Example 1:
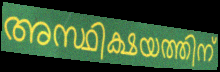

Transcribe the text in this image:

അസ്ഥിക്ഷയത്തിന്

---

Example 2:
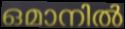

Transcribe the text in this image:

ഒമാനിൽ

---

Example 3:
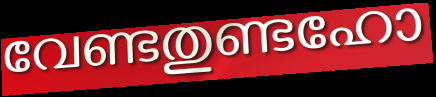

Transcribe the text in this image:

വേണ്ടതുണ്ടഹോ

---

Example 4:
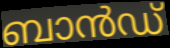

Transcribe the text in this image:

ബാൻഡ്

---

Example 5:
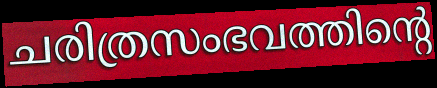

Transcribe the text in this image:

ചരിത്രസംഭവത്തിന്റെ